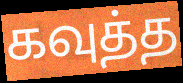
கவுத்த